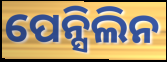
ପେନ୍ସିଲିନ